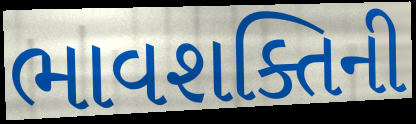
ભાવશક્તિની